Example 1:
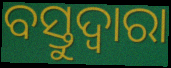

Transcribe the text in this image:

ବସ୍ତୁଦ୍ଵାରା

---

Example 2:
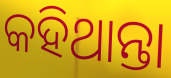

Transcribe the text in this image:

କହିଥାନ୍ତା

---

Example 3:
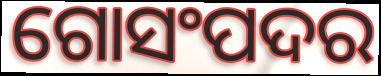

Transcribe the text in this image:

ଗୋସଂପଦର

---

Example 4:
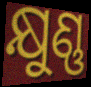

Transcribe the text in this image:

କ୍ଷୁଣ୍ଣ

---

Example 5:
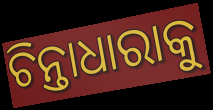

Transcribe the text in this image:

ଚିନ୍ତାଧାରାକୁ